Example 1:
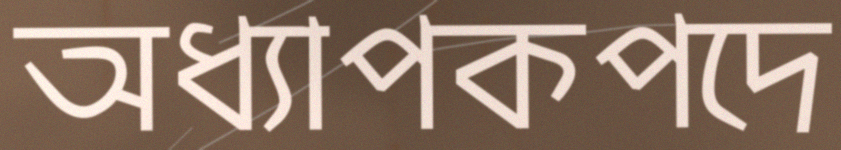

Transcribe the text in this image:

অধ্যাপকপদে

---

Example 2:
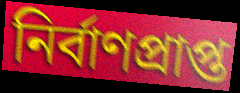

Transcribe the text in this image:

নির্বাণপ্রাপ্ত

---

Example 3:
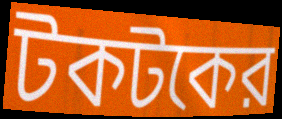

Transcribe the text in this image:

টকটকের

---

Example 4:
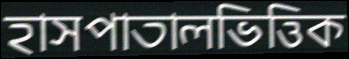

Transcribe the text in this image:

হাসপাতালভিত্তিক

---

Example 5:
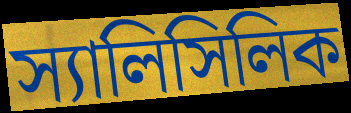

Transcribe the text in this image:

স্যালিসিলিক